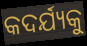
କଦର୍ଯ୍ୟକୁ